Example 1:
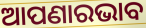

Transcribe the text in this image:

ଆପଣାରଭାବ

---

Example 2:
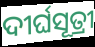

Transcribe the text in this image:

ଦୀର୍ଘସୂତ୍ରୀ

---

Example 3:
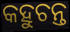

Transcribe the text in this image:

କହୁଚନ୍ତ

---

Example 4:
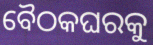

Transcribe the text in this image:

ବୈଠକଘରକୁ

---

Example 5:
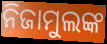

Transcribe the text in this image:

ନିଜାମୁଲଙ୍କ